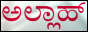
ಅಲ್ಲಾಹ್